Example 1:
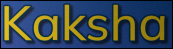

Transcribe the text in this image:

Kaksha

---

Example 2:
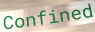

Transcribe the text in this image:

Confined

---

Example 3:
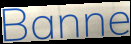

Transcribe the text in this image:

Banne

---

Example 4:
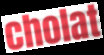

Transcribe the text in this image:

cholat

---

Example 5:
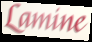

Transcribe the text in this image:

Lamine